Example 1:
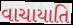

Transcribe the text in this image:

વાચાયાતિ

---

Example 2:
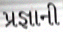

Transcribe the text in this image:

પ્રજ્ઞાની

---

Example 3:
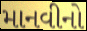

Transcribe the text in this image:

માનવીનો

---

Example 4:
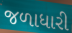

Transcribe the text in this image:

જળાધારી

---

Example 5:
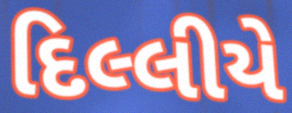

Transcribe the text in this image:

દિલ્લીયે